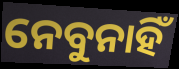
ନେବୁନାହିଁ